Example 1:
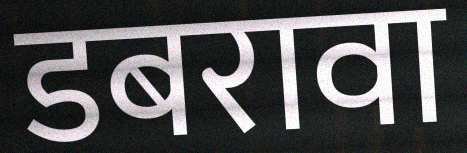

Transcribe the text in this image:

डबरावा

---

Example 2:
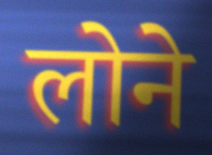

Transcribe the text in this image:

लोने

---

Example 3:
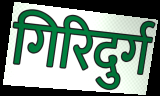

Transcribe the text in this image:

गिरिदुर्ग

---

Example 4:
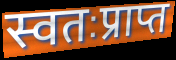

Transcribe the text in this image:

स्वतःप्राप्त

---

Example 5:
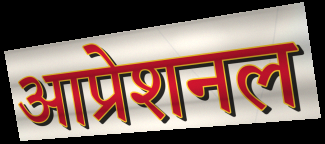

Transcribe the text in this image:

आप्रेशनल